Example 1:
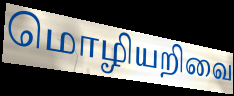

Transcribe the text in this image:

மொழியறிவை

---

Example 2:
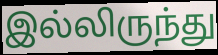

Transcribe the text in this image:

இல்லிருந்து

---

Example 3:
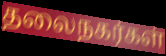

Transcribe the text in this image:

தலைநகர்கள்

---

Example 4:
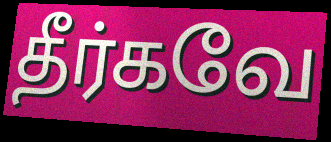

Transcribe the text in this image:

தீர்கவே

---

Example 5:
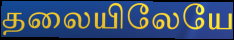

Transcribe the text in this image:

தலையிலேயே